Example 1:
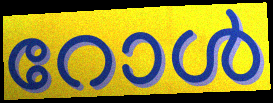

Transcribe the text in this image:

റോൾ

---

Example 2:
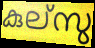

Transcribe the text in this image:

കുല്സു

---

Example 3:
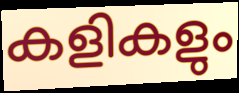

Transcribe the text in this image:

കളികളും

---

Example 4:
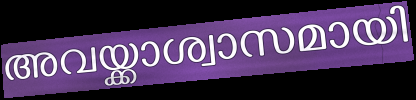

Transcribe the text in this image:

അവയ്ക്കാശ്വാസമായി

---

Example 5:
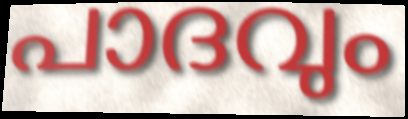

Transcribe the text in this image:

പാദവും